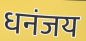
धनंजय